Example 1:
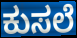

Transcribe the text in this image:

ಕುಸಲೆ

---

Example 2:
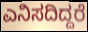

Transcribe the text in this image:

ಎನಿಸದಿದ್ದರೆ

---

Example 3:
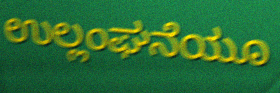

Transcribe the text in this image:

ಉಲ್ಲಂಘನೆಯೂ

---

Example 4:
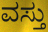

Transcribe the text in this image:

ವಸ್ತು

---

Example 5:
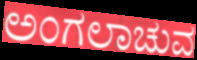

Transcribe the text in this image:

ಅಂಗಲಾಚುವ